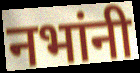
नभांनी